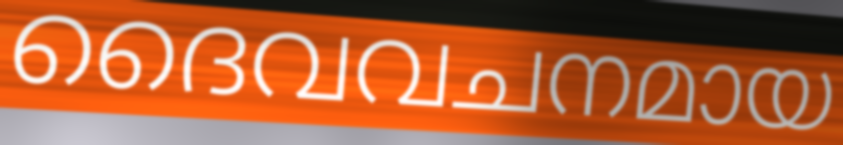
ദൈവവചനമായ